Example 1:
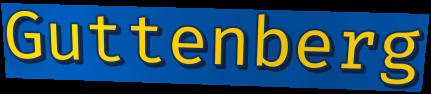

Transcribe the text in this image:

Guttenberg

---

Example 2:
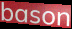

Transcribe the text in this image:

bason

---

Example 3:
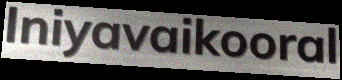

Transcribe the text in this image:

Iniyavaikooral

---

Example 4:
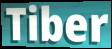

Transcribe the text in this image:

Tiber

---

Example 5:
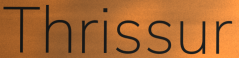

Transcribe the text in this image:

Thrissur